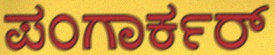
ಪಂಗಾರ್ಕರ್